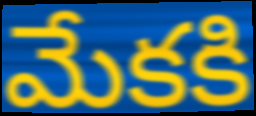
మేకకి